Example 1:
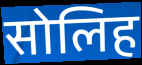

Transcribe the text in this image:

सोलिह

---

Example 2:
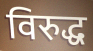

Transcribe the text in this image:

विरुद्ध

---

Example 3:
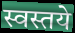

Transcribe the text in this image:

स्वस्तये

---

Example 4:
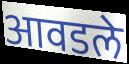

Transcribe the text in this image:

आवडले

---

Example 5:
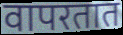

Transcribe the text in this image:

वापरतात